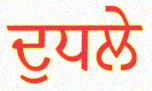
ਦੁਧਲੇ